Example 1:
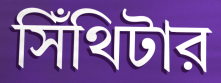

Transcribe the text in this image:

সিঁথিটার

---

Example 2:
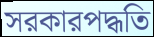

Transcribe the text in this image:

সরকারপদ্ধতি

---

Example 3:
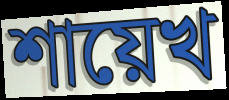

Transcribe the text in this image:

শায়েখ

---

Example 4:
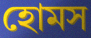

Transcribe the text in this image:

হোমস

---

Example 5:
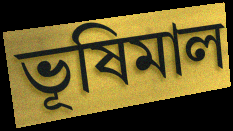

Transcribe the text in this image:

ভূষিমাল